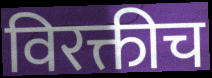
विरक्तीच